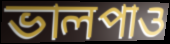
ভালপাও